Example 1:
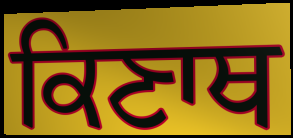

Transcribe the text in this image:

ਕਿਣਾਥ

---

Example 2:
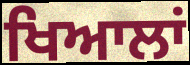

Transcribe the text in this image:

ਖਿਆਲਾਂ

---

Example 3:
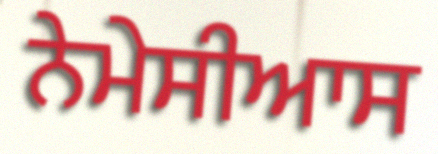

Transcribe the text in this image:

ਨੇਮੇਸੀਆਸ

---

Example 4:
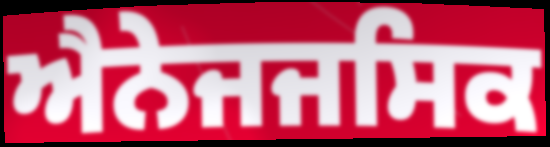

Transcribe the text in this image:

ਐਨੇਜਜਸਿਕ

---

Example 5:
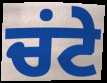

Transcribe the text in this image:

ਚਂਟੇ